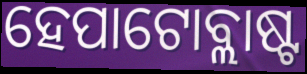
ହେପାଟୋବ୍ଲାଷ୍ଟ